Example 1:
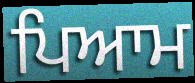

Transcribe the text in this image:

ਪਿਆਮ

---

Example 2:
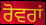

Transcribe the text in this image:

ਰੋਵਰਾਂ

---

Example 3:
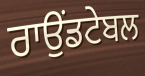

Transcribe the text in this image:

ਰਾਉਂਡਟੇਬਲ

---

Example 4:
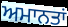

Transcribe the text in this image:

ਅਮਾਨਤਾਂ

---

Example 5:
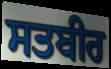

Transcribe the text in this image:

ਸਤਬੀਰ